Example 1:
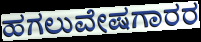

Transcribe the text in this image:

ಹಗಲುವೇಷಗಾರರ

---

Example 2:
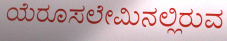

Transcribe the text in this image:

ಯೆರೂಸಲೇಮಿನಲ್ಲಿರುವ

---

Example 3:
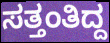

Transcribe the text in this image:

ಸತ್ತಂತಿದ್ದ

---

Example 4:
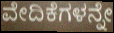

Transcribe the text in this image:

ವೇದಿಕೆಗಳನ್ನೇ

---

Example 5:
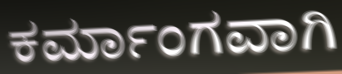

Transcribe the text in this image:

ಕರ್ಮಾಂಗವಾಗಿ